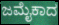
ಜಮೈಕಾದ